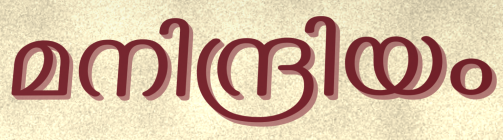
മനിന്ദ്രിയം